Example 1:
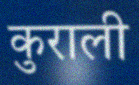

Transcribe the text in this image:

कुराली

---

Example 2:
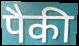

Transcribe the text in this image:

पैकी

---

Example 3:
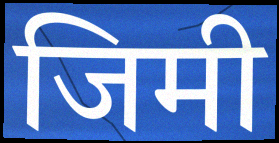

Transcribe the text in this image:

जिमी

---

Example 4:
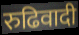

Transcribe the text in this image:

रुढिवादी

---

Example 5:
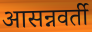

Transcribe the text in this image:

आसन्नवर्ती